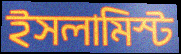
ইসলামিস্ট